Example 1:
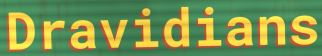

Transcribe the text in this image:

Dravidians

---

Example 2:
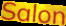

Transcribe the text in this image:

Salon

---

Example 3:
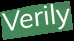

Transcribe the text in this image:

Verily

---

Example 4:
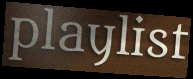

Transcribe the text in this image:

playlist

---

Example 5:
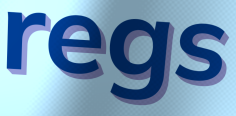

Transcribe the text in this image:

regs